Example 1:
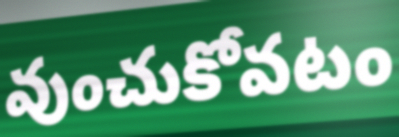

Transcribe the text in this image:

వుంచుకోవటం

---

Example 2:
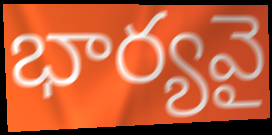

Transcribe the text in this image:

భార్యవై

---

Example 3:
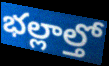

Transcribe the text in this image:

భల్లాల్తో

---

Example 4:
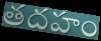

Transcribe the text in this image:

తదహం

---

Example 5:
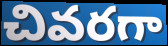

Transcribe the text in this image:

చివరగా